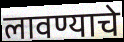
लावण्याचे